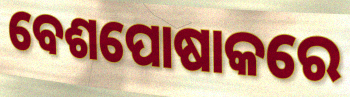
ବେଶପୋଷାକରେ